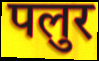
पलुर